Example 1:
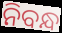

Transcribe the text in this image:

ନିବନ୍ଧ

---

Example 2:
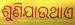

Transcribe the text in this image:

ଶୁଣିଯାଉଥାଏ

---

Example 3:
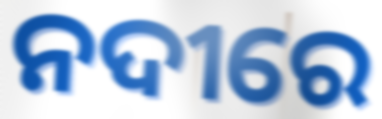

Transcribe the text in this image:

ନଦୀରେ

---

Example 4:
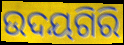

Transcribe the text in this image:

ଉଦୟଗିରି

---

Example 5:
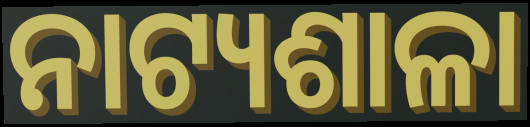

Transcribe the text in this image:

ନାଟ୍ୟଶାଳା